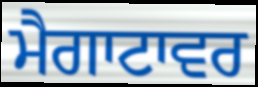
ਮੈਗਾਟਾਵਰ